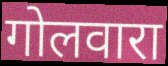
गोलवारा